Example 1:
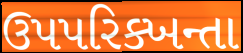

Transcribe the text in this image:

ઉપપરિક્ખન્તા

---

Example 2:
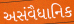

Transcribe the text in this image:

અસંવૈધાનિક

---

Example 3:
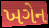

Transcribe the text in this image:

ખગેન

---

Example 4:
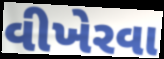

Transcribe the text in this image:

વીખેરવા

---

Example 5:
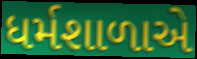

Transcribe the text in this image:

ધર્મશાળાએ